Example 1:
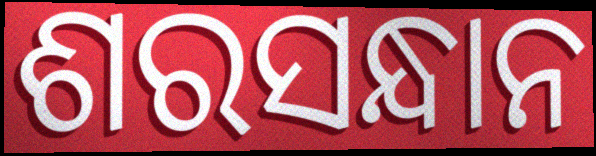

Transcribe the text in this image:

ଶରସନ୍ଧାନ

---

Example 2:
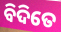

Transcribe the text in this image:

ବିଦିତେ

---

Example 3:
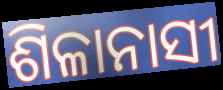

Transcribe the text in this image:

ଶିଳାନାସୀ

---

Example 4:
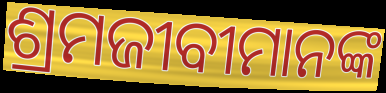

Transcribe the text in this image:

ଶ୍ରମଜୀବୀମାନଙ୍କ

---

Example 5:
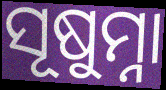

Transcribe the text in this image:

ସୂଷୁମ୍ନା